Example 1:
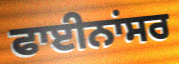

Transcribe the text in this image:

ਫਾਈਨਾਂਸਰ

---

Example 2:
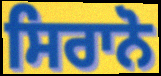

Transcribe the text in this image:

ਸਿਰਾਨੋ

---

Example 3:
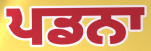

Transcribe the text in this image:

ਪਡਨਾ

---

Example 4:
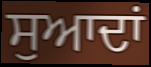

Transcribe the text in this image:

ਸੁਆਦਾਂ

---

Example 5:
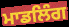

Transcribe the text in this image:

ਮਾਡਲਿੰਗ